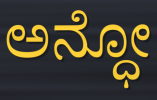
ಅನ್ಧೋ